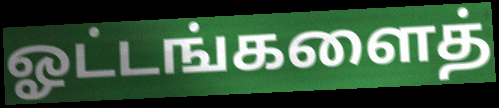
ஓட்டங்களைத்